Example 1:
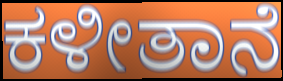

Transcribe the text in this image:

ಕಳೀತಾನೆ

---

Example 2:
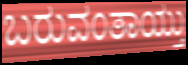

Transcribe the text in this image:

ಬರುವಂತಾಯ್ತು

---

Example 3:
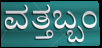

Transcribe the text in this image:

ವತ್ತಬ್ಬಂ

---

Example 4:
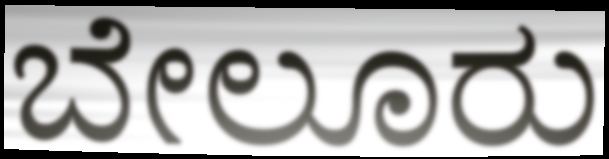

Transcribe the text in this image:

ಬೇಲೂರು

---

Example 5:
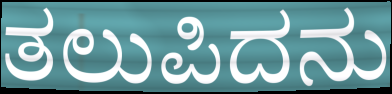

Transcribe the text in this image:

ತಲುಪಿದನು